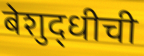
बेशुद्धीची